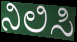
ನಿಲಿಸಿ